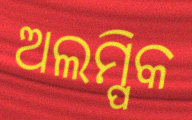
ଅଲମ୍ପିକ